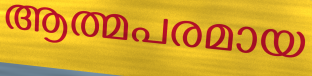
ആത്മപരമായ